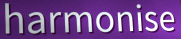
harmonise